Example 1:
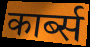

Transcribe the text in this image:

कार्ब्स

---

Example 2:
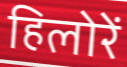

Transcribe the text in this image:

हिलोरें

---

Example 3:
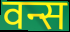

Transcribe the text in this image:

वन्स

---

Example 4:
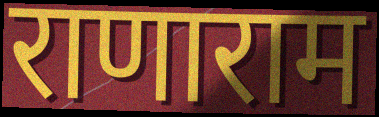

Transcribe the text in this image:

राणाराम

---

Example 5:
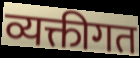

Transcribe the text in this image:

व्यक्तीगत